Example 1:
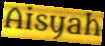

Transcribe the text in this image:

Aisyah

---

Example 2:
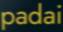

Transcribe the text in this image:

padai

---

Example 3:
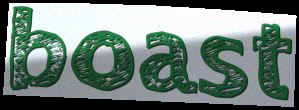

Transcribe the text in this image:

boast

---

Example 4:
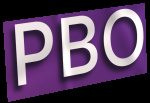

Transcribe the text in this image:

PBO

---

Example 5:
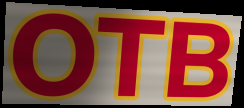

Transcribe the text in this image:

OTB